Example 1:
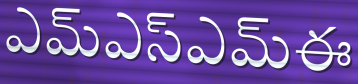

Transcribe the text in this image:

ఎమ్ఎస్ఎమ్ఈ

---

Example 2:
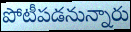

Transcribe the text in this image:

పోటీపడనున్నారు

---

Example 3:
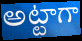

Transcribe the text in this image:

అట్టాగా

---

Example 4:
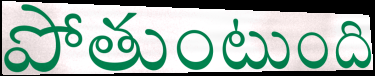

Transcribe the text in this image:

పోతుంటుంది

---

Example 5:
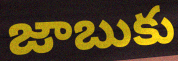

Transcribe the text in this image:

జాబుకు